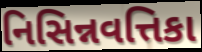
નિસિન્નવત્તિકા